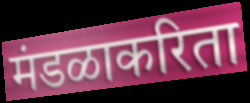
मंडळाकरिता